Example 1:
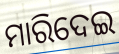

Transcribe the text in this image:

ମାରିଦେଇ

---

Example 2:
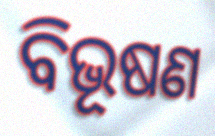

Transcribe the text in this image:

ବିଭୂଷଣ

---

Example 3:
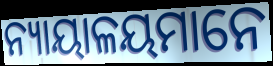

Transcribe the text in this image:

ନ୍ୟାୟାଳୟମାନେ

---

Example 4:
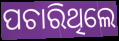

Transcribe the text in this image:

ପଚାରିଥିଲେ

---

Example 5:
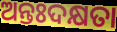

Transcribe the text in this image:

ଅନ୍ତଃଦକ୍ଷତା